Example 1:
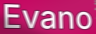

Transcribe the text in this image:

Evano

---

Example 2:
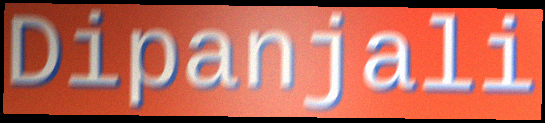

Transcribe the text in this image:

Dipanjali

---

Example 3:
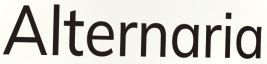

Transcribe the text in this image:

Alternaria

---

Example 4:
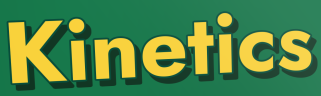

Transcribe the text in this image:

Kinetics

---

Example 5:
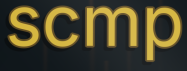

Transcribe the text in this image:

scmp